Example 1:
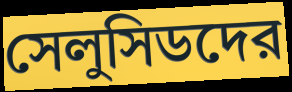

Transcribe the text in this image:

সেলুসিডদের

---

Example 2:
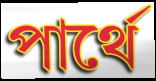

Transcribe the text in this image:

পার্থে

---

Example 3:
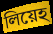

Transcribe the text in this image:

লিয়েহ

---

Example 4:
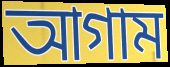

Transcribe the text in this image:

আগাম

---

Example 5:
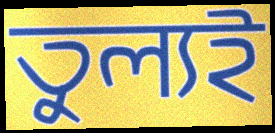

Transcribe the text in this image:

তুল্যই